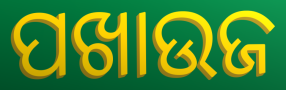
ପଖାଉଜ